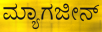
ಮ್ಯಾಗಜೀನ್